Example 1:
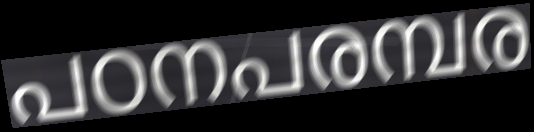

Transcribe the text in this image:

പഠനപരമ്പര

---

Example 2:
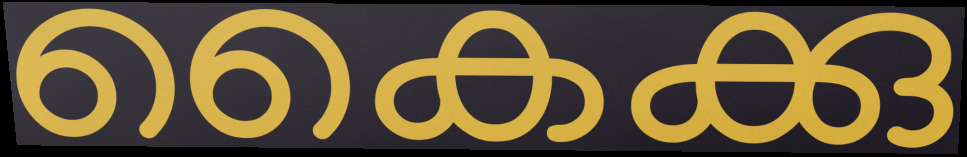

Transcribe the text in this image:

കൈക്കു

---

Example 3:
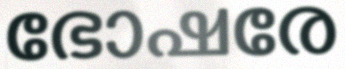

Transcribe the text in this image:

ഭോഷരേ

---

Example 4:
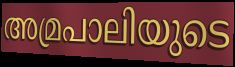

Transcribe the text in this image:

അമ്രപാലിയുടെ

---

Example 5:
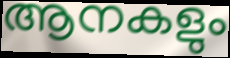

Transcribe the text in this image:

ആനകളും